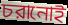
চরানোই